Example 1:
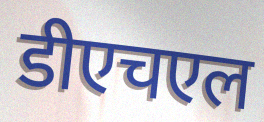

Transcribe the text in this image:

डीएचएल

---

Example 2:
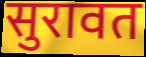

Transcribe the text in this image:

सुरावत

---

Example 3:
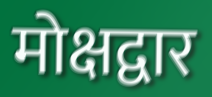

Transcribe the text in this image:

मोक्षद्वार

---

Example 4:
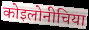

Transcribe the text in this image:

कोइलोनीचिया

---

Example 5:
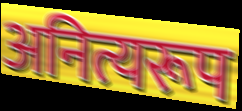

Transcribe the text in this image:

अनित्यरूप